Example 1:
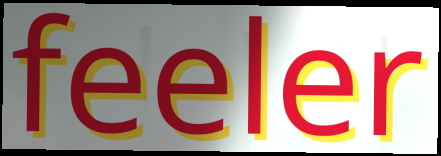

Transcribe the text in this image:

feeler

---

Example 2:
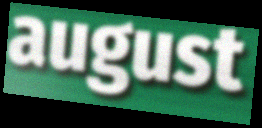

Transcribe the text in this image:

august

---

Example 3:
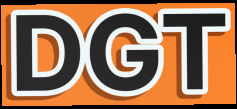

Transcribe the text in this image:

DGT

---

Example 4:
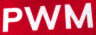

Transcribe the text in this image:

PWM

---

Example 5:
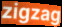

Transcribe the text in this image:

zigzag